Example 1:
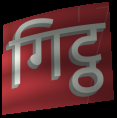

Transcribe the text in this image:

गिट्ठ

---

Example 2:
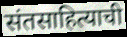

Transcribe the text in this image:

संतसाहित्याची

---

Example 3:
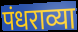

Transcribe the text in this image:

पंधराव्या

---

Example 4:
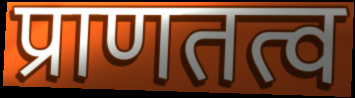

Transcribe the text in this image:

प्राणतत्व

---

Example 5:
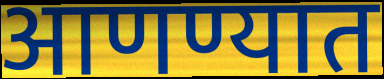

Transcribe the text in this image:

आणण्यात